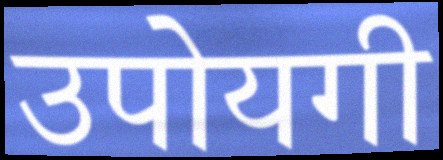
उपोयगी